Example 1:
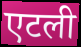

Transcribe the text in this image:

एटली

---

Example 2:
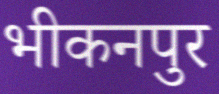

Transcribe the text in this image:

भीकनपुर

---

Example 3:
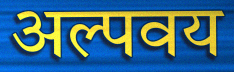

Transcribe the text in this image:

अल्पवय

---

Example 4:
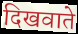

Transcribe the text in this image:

दिखवाते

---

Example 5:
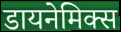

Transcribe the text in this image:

डायनेमिक्स